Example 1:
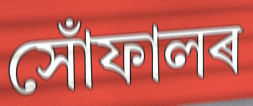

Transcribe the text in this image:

সোঁফালৰ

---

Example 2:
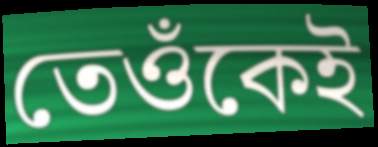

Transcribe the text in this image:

তেওঁকেই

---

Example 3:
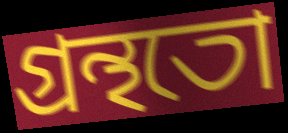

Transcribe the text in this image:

গ্ৰন্থতো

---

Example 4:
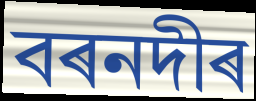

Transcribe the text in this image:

বৰনদীৰ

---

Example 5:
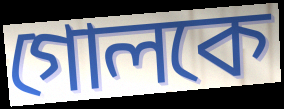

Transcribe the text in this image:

গোলকে